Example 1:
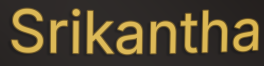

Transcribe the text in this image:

Srikantha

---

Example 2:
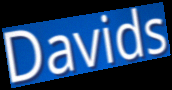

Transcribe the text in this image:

Davids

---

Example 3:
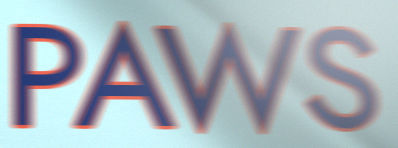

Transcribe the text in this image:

PAWS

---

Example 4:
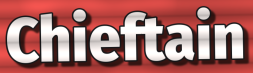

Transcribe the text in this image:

Chieftain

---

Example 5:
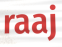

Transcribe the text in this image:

raaj